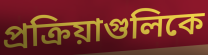
প্রক্রিয়াগুলিকে